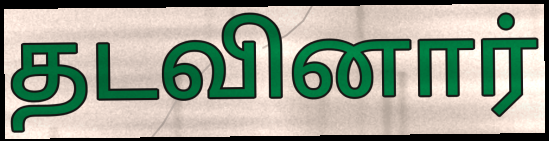
தடவினார்